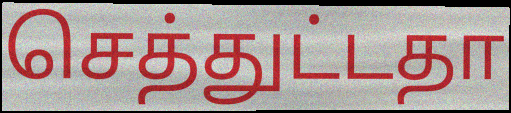
செத்துட்டதா